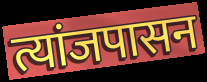
त्यांजपासन